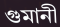
গুমানী